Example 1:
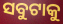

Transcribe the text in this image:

ସବୁଟାକୁ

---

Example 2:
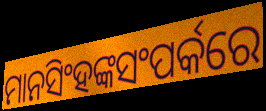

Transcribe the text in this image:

ମାନସିଂହଙ୍କସଂପର୍କରେ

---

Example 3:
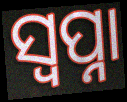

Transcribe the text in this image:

ସ୍ଵପ୍ନା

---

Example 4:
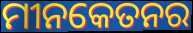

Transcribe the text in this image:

ମୀନକେତନର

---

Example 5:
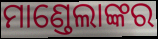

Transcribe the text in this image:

ମାଣ୍ଡେଲାଙ୍କର